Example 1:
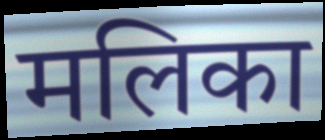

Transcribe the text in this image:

मलिका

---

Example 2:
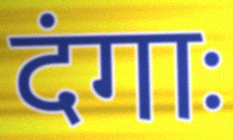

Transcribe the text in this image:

दंगाः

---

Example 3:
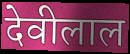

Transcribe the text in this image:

देवीलाल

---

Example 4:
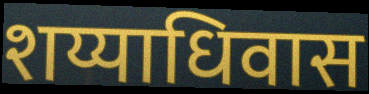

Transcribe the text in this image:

शय्याधिवास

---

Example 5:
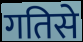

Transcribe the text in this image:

गतिसे